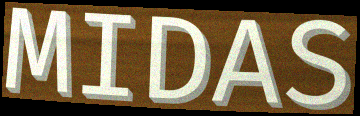
MIDAS